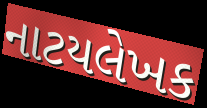
નાટયલેખક